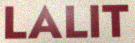
LALIT